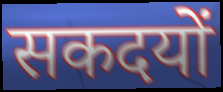
सकदयों